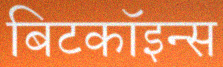
बिटकॉइन्स